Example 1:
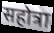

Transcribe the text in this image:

सहोत्रा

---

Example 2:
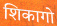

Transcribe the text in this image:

शिकागो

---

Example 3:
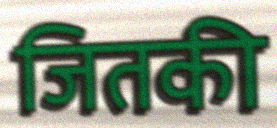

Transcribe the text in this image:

जितकी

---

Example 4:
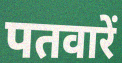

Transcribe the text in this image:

पतवारें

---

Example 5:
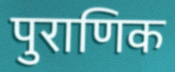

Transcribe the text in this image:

पुराणिक